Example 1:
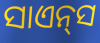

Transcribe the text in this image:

ସାଏନ୍‌ସ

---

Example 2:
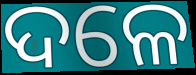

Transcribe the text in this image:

ଦଳେ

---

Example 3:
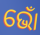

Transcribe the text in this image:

ଭୋଁ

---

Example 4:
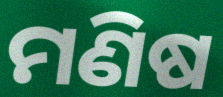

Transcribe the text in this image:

ମଣିଷ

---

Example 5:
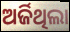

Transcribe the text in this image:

ଅର୍ଜିଥିଲା